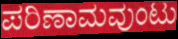
ಪರಿಣಾಮವುಂಟು